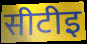
सीटीइ